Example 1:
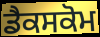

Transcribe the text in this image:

ਡੈਕਸਕੋਮ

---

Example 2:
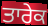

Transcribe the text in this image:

ਤਾਰੇਕ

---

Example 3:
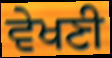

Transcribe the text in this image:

ਵੇਖਣੀ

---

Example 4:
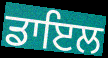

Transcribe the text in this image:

ਡਾਇਲ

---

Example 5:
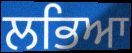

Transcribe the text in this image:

ਲਭਿਆ